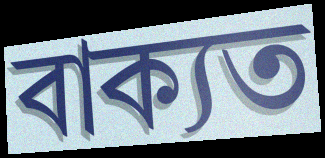
বাক্যত